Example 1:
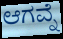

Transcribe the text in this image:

ಆಗವ್ನೆ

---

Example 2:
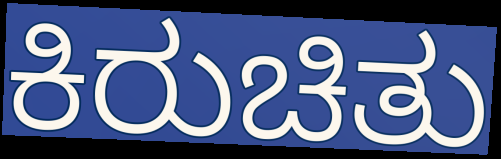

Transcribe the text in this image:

ಕಿರುಚಿತು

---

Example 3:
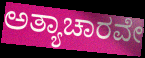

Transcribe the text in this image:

ಅತ್ಯಾಚಾರವೇ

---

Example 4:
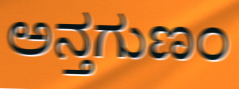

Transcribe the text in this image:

ಅನ್ತಗುಣಂ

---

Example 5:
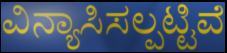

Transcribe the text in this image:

ವಿನ್ಯಾಸಿಸಲ್ಪಟ್ಟಿವೆ